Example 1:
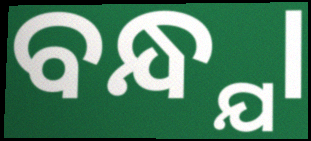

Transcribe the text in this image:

ବନ୍ଧ୍ଯା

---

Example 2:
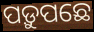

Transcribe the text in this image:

ପଡ଼ୁପଛେ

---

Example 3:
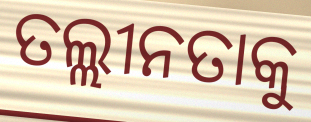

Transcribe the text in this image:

ତଲ୍ଲୀନତାକୁ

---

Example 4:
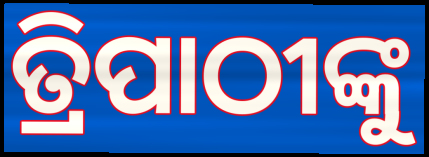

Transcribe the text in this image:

ତ୍ରିପାଠୀଙ୍କୁ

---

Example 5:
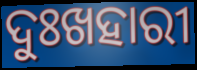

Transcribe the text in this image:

ଦୁଃଖହାରୀ